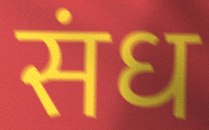
संध